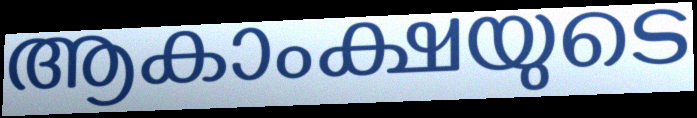
ആകാംക്ഷയുടെ